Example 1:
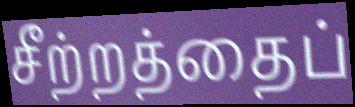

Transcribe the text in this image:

சீற்றத்தைப்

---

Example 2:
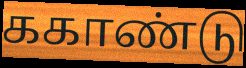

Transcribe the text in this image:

ககாண்டு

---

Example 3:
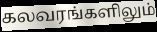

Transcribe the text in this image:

கலவரங்களிலும்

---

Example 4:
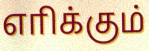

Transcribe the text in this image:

எரிக்கும்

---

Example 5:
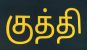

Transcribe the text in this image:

குத்தி